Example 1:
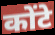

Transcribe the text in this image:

कोंटे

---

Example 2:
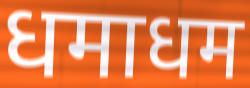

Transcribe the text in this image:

धमाधम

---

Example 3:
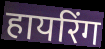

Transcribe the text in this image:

हायरिंग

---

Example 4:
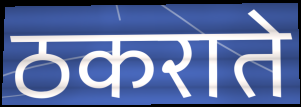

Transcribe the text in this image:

ठकराते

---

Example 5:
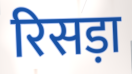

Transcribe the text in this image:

रिसड़ा